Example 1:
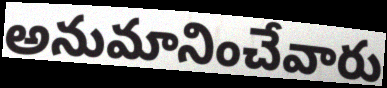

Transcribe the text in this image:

అనుమానించేవారు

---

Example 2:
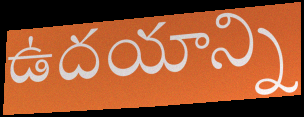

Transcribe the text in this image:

ఉదయాన్ని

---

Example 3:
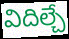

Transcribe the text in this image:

విదిల్చే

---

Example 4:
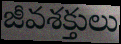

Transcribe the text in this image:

జీవశక్తులు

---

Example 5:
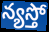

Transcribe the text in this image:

న్యస్తో